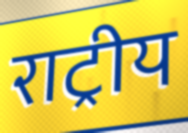
राट्रीय